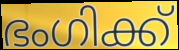
ഭംഗിക്ക്